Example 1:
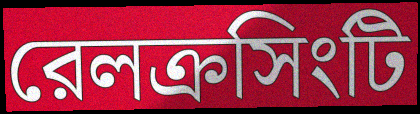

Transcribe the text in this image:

রেলক্রসিংটি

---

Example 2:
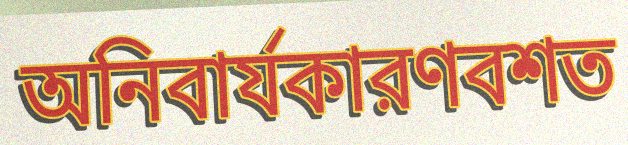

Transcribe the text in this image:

অনিবার্যকারণবশত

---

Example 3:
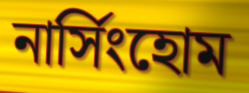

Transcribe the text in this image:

নার্সিংহোম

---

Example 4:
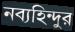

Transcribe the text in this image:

নব্যহিন্দুর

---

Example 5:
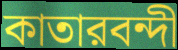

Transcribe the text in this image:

কাতারবন্দী